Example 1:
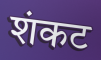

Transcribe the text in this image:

शंकट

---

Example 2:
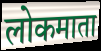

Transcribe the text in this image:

लोकमाता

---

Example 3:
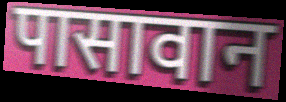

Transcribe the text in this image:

पासावान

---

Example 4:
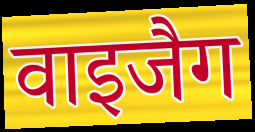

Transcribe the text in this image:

वाइजैग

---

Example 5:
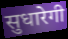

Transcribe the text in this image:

सुधारेगी